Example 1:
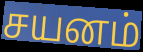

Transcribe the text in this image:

சயனம்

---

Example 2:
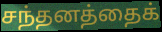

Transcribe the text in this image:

சந்தனத்தைக்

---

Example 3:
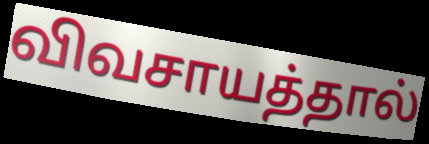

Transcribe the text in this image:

விவசாயத்தால்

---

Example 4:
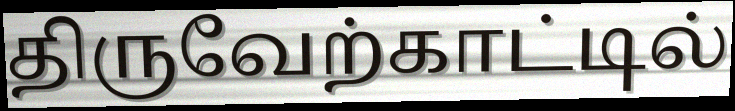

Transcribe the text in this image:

திருவேற்காட்டில்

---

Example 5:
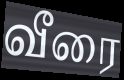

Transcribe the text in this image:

வீரை